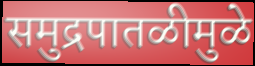
समुद्रपातळीमुळे